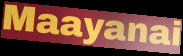
Maayanai